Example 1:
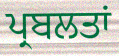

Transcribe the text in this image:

ਪ੍ਰਬਲਤਾਂ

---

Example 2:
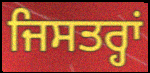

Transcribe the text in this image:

ਜਿਸਤਰ੍ਹਾਂ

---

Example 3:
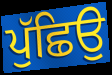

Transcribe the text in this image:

ਪੁੱਛਿਉ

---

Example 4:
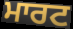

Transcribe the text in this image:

ਮਾਰਟ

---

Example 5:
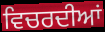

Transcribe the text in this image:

ਵਿਚਰਦੀਆਂ